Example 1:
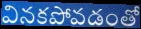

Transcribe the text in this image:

వినకపోవడంతో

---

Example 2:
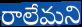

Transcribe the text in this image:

రాలేమని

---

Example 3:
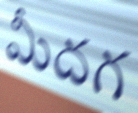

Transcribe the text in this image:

మీదగ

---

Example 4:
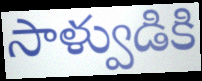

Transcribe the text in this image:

సాళ్వుడికి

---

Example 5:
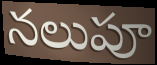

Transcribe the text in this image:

నలుపూ